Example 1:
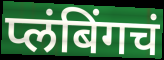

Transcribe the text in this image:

प्लंबिंगचं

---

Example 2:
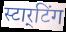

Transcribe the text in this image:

स्टार्टिंग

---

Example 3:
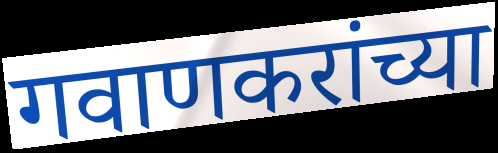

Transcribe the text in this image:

गवाणकरांच्या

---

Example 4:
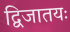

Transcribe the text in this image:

द्विजातयः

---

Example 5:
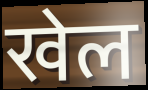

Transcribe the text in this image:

खेल